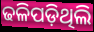
ଢଳିପଡ଼ିଥିଲି